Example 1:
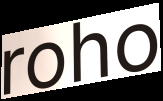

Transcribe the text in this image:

roho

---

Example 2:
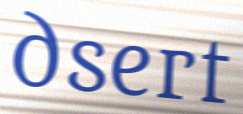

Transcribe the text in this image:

dsert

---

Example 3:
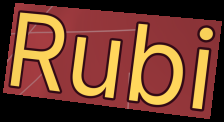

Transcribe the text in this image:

Rubi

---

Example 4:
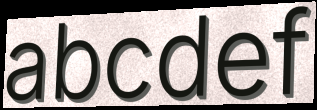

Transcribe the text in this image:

abcdef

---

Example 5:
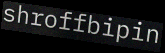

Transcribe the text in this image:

shroffbipin